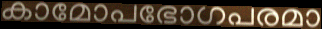
കാമോപഭോഗപരമാ